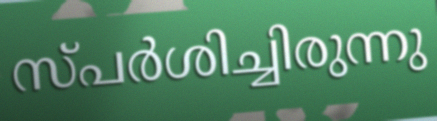
സ്പർശിച്ചിരുന്നു